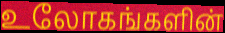
உலோகங்களின்